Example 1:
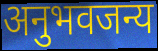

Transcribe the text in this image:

अनुभवजन्य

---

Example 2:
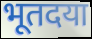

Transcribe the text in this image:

भूतदया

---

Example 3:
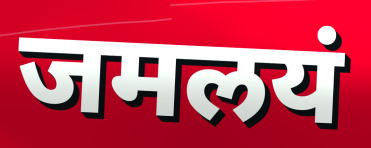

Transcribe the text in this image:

जमलयं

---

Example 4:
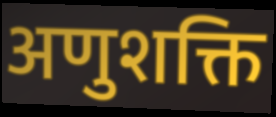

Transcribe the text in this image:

अणुशक्ति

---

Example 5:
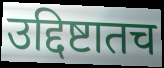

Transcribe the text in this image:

उद्दिष्टातच